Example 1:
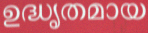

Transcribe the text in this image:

ഉദ്ധൃതമായ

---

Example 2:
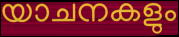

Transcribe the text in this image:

യാചനകളും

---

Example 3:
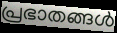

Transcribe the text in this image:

പ്രഭാതങ്ങൾ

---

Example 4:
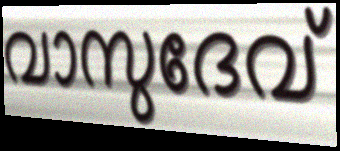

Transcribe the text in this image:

വാസുദേവ്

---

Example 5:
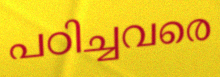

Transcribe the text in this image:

പഠിച്ചവരെ